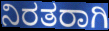
ನಿರತರಾಗಿ